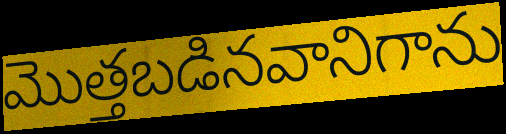
మొత్తబడినవానిగాను